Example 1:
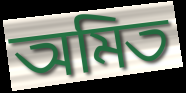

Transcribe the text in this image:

অমিত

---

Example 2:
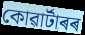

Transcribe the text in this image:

কোৱাৰ্টাৰৰ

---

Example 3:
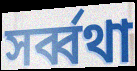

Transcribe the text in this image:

সৰ্ব্বথা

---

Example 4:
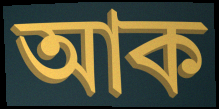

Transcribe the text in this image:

আক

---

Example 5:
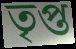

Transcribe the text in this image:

তৃপ্ত